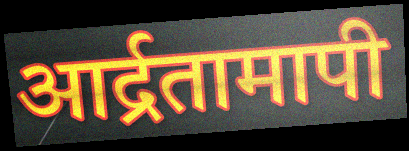
आर्द्रतामापी